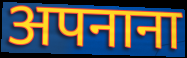
अपनाना